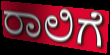
ರಾಲಿಗೆ